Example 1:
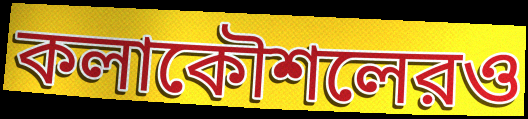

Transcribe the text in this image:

কলাকৌশলেরও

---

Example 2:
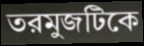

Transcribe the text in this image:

তরমুজটিকে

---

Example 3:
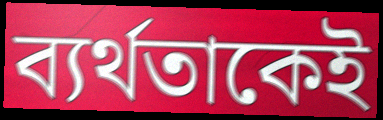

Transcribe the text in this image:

ব্যর্থতাকেই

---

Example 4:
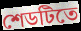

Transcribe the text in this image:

শেডটিতে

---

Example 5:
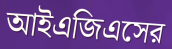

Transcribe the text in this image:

আইএজিএসের